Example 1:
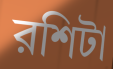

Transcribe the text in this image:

রশিটা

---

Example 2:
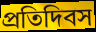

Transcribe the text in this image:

প্রতিদিবস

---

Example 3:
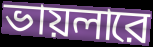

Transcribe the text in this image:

ভায়লারে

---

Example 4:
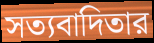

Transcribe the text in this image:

সত্যবাদিতার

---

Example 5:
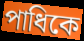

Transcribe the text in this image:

পাধিকে